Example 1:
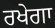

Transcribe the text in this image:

ਰਖੇਗਾ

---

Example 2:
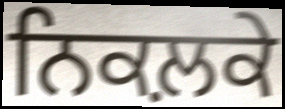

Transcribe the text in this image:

ਨਿਕਲ਼ਕੇ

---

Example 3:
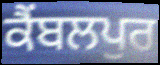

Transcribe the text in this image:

ਕੈਂਬਲਪੁਰ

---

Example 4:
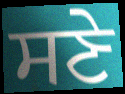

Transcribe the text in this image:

ਸਣੇ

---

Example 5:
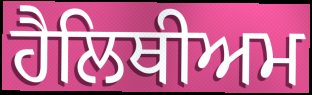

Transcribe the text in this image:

ਹੈਲਿਥੀਅਮ